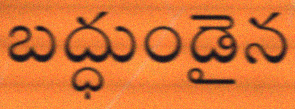
బద్ధుండైన